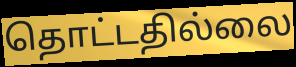
தொட்டதில்லை